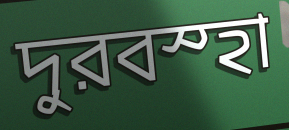
দুরবস্হা